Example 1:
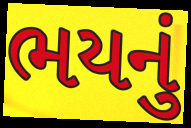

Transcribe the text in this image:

ભયનું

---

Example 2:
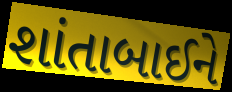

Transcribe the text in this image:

શાંતાબાઈને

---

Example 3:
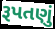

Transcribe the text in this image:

રૂપતણું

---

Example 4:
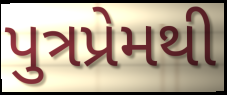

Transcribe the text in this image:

પુત્રપ્રેમથી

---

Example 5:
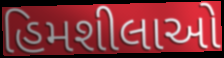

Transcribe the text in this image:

હિમશીલાઓ